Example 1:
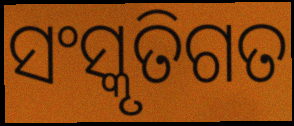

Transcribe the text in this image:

ସଂସ୍କୃତିଗତ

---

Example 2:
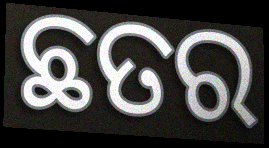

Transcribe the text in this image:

ଛତର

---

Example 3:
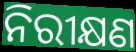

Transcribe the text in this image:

ନିରୀକ୍ଷଣ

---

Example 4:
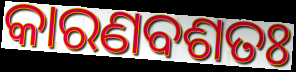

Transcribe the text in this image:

କାରଣବଶତଃ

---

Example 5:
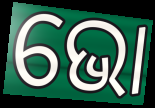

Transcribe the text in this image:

ଭୋ